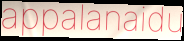
appalanaidu